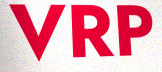
VRP